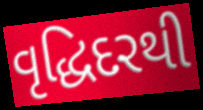
વૃદ્ધિદરથી